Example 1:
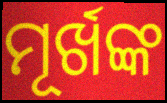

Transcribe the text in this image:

ମୂର୍ଖଙ୍କ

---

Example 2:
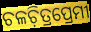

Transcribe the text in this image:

ଚଳଚ଼ିତ୍ରପ୍ରେମୀ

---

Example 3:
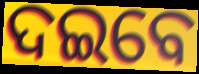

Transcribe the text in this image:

ଦଇବେ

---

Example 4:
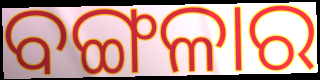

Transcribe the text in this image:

ବଙ୍ଗଳାର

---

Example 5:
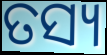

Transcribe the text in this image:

ତସ୍ୟ